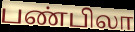
பண்பிலா